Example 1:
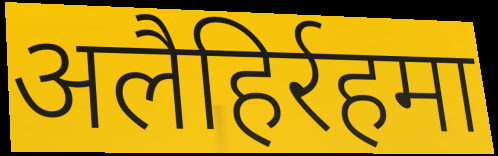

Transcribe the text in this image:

अलैहिर्रहमा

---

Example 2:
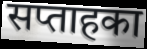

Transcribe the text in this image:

सप्ताहका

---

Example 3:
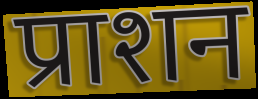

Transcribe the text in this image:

प्राशन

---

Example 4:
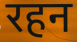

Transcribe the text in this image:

रहन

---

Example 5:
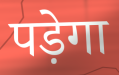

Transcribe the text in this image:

पड़ेगा